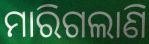
ମାରିଗଲାଣି